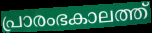
പ്രാരംഭകാലത്ത്